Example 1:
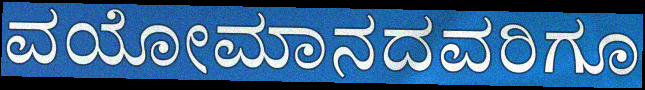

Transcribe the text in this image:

ವಯೋಮಾನದವರಿಗೂ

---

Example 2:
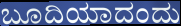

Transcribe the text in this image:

ಬೂದಿಯಾದಂದು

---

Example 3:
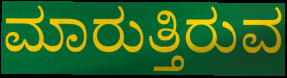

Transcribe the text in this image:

ಮಾರುತ್ತಿರುವ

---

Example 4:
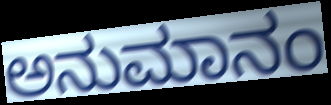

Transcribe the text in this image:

ಅನುಮಾನಂ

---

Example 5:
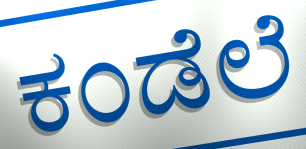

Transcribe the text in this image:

ಕಂಡೆಲೆ